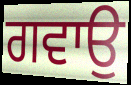
ਗਵਾਉ